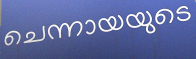
ചെന്നായയുടെ